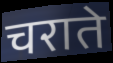
चराते